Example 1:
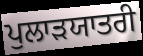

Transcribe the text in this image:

ਪੁਲਾੜਯਾਤਰੀ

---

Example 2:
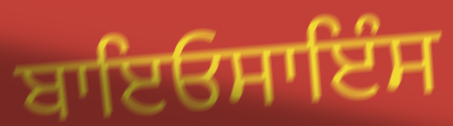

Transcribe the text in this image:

ਬਾਇਓਸਾਇੰਸ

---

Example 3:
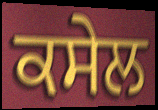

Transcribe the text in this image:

ਕਸੇਲ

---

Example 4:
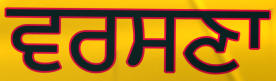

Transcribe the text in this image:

ਵਰਸਣਾ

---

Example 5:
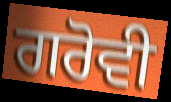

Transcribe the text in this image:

ਗਰੋਵੀ